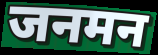
जनमन